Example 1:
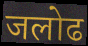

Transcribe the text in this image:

जलोढ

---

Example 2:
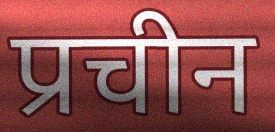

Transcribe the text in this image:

प्रचीन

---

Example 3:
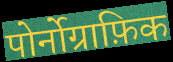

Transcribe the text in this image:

पोर्नोग्राफ़िक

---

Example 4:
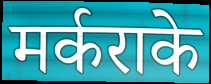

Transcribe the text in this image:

मर्कराके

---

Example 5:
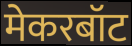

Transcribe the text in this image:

मेकरबॉट